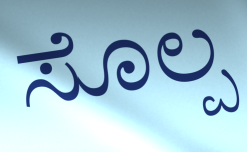
ಸೊಲ್ಪ